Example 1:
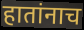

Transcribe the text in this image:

हातांनाच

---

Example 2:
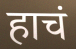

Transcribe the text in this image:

हाचं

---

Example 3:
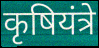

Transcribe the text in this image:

कृषियंत्रे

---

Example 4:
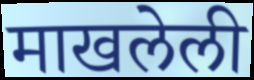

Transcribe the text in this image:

माखलेली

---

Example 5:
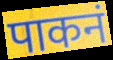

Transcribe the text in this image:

पाकनं